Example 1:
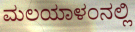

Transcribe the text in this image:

ಮಲಯಾಳಂನಲ್ಲಿ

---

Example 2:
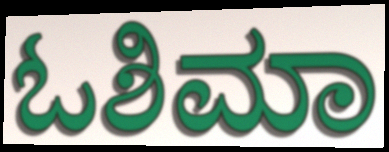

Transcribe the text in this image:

ಓಶಿಮಾ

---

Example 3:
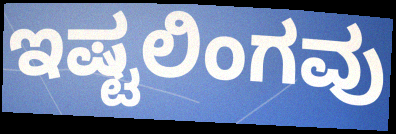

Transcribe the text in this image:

ಇಷ್ಟಲಿಂಗವು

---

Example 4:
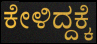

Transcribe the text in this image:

ಕೇಳಿದ್ದಕ್ಕೆ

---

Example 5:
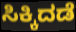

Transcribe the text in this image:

ಸಿಕ್ಕಿದಡೆ